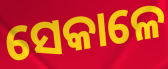
ସେକାଳେ